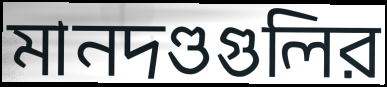
মানদণ্ডগুলির